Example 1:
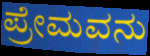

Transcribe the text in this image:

ಪ್ರೇಮವನು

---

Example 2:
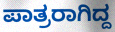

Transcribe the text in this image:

ಪಾತ್ರರಾಗಿದ್ದ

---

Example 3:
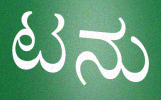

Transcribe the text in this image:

ಟನು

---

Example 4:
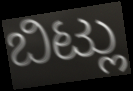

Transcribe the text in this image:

ಬಿಟ್ಲು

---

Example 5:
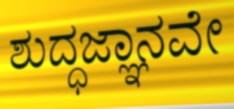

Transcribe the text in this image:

ಶುದ್ಧಜ್ಞಾನವೇ